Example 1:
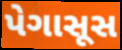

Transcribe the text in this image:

પેગાસૂસ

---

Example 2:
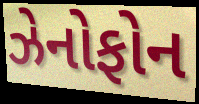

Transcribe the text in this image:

ઝેનોફોન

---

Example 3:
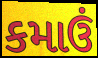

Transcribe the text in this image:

કમાઉં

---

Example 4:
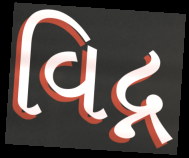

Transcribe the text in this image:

વિદ્ન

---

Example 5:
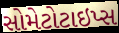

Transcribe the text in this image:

સોમેટોટાઇપ્સ